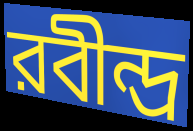
রবীন্দ্র